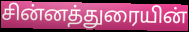
சின்னத்துரையின்